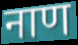
नाण